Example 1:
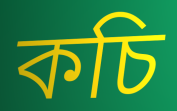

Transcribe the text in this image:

কচি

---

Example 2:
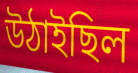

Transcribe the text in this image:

উঠাইছিল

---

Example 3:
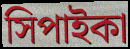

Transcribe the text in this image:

সিপাইকা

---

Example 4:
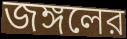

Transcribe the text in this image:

জঙ্গলের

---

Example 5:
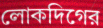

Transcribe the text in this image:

লোকদিগের